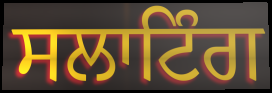
ਸਲਾਟਿੰਗ